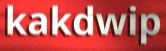
kakdwip